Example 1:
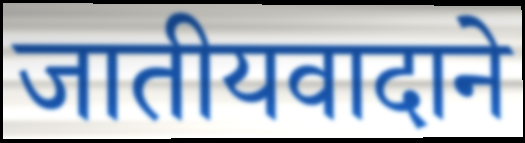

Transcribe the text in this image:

जातीयवादाने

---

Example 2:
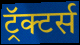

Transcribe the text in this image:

ट्रॅक्टर्स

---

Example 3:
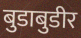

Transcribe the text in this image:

बुडाबुडीर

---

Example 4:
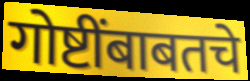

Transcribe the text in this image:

गोष्टींबाबतचे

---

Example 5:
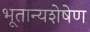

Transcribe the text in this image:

भूतान्यशेषेण